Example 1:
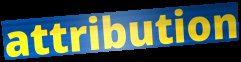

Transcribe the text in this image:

attribution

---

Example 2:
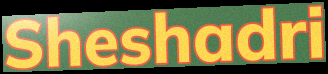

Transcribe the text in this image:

Sheshadri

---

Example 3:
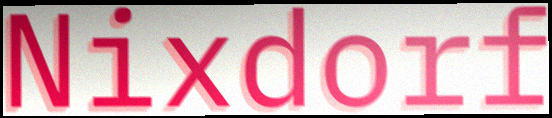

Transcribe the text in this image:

Nixdorf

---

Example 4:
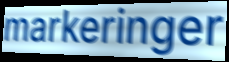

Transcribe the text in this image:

markeringer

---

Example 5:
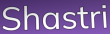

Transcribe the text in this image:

Shastri